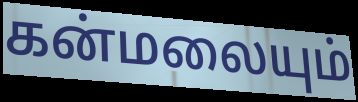
கன்மலையும்